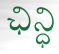
ఛిన్ధి